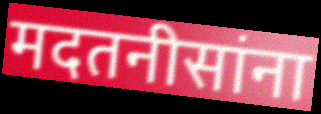
मदतनीसांना